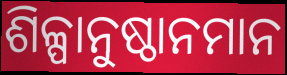
ଶିଳ୍ପାନୁଷ୍ଠାନମାନ